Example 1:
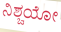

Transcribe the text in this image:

ನಿಶ್ಚಯೋ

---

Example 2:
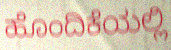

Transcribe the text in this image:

ಹೊಂದಿಕೆಯಲ್ಲಿ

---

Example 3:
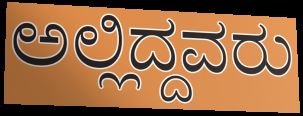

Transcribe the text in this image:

ಅಲ್ಲಿದ್ದವರು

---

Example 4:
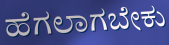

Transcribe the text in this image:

ಹೆಗಲಾಗಬೇಕು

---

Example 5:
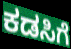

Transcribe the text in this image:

ಕಡಸಿಗೆ